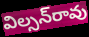
విల్సన్‌రావు